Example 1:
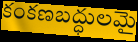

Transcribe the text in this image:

కంకణబద్ధులమై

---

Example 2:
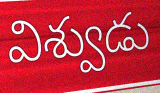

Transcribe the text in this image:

విశ్వుడు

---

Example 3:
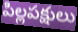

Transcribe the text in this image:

పిల్లపక్షులు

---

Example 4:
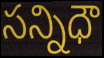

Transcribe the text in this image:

సన్నిధౌ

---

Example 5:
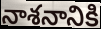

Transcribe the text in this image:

నాశనానికి